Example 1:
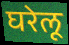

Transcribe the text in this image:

घरेलू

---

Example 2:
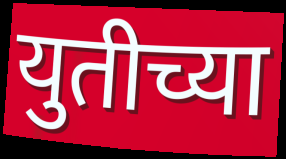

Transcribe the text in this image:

युतीच्या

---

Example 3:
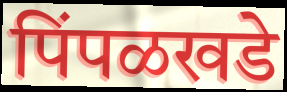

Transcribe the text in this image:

पिंपळखडे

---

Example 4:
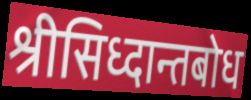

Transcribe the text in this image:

श्रीसिध्दान्तबोध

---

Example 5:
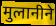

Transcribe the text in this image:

मुलानीने